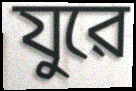
যুৱে